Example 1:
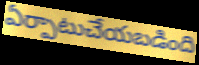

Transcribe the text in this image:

ఏర్పాటుచేయబడింది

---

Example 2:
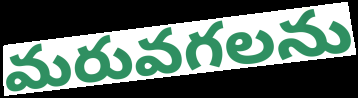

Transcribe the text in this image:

మరువగలను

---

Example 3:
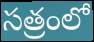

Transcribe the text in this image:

సత్రంలో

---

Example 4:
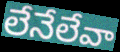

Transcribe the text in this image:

లేనేలేవా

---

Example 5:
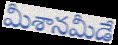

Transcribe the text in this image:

మీశానమీడే